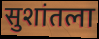
सुशांतला